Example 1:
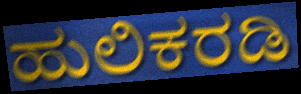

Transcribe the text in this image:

ಹುಲಿಕರಡಿ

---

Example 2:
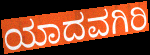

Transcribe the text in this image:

ಯಾದವಗಿರಿ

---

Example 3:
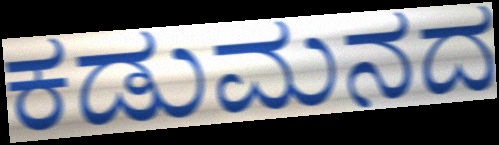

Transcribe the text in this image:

ಕಡುಮನದ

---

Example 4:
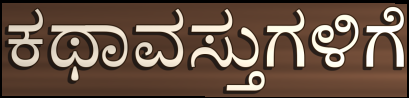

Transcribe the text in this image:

ಕಥಾವಸ್ತುಗಳಿಗೆ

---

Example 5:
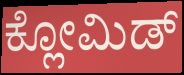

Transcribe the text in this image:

ಕ್ಲೋಮಿಡ್